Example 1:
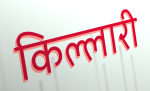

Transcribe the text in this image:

किल्लारी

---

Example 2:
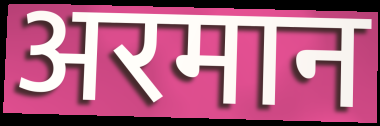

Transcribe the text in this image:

अरमान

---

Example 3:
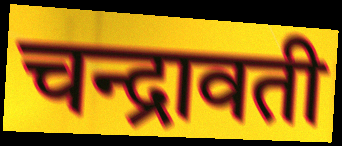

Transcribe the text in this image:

चन्द्रावती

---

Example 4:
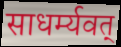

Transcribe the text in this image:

साधर्म्यवत्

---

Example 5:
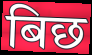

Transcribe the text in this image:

बिछ